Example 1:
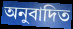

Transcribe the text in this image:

অনুবাদিত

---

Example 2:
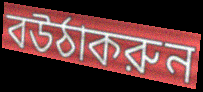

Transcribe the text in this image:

বউঠাকরুন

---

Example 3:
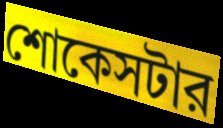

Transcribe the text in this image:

শোকেসটার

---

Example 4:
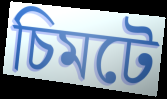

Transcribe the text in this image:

চিমটে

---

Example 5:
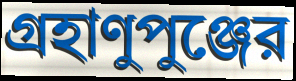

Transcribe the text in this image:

গ্রহাণুপুঞ্জের